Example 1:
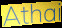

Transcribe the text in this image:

Athai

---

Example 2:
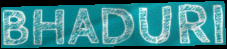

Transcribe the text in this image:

BHADURI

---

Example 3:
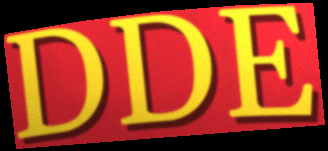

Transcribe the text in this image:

DDE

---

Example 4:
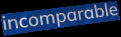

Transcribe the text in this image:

incomparable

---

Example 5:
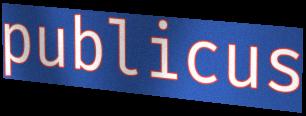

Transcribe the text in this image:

publicus